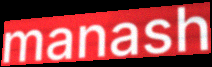
manash